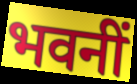
भवनीं